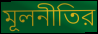
মূলনীতির